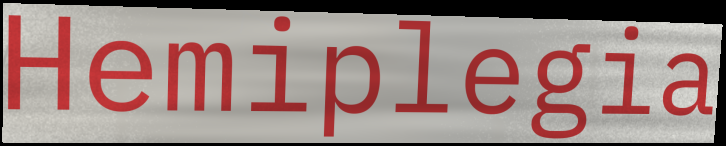
Hemiplegia